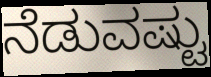
ನೆಡುವಷ್ಟು